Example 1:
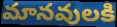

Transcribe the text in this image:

మానవులకి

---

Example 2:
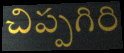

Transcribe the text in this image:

చిప్పగిరి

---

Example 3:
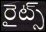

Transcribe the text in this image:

రైట్స్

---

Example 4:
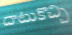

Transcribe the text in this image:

దాటుకొచ్చి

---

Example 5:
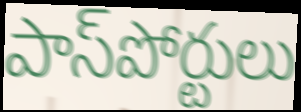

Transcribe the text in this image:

పాస్‌పోర్టులు